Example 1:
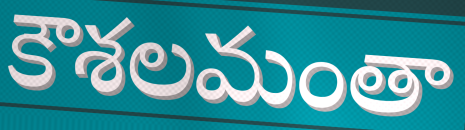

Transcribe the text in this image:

కౌశలమంతా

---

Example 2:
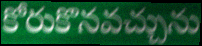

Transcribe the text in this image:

కోరుకొనవచ్చును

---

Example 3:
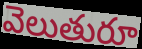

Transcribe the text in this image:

వెలుతురూ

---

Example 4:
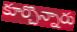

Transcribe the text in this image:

కూర్చొన్నారు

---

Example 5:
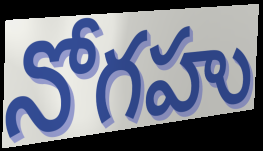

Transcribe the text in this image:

నోగహు